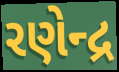
રણેન્દ્ર